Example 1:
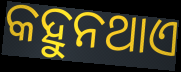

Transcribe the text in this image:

କହୁନଥାଏ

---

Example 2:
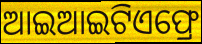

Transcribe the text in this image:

ଆଇଆଇଟିଏଫ୍ରେ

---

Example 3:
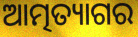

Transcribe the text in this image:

ଆତ୍ମତ୍ୟାଗର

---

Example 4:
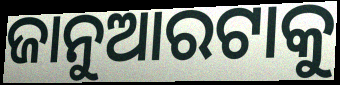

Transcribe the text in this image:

ଜାନୁଆରଟାକୁ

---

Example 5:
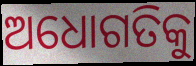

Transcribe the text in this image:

ଅଧୋଗତିକୁ